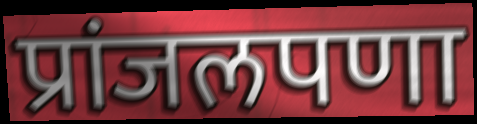
प्रांजलपणा